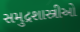
સમુદ્રશાસ્ત્રીઓ